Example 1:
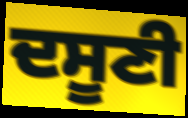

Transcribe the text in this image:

ਦਸੂਣੀ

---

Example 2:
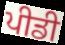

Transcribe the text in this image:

ਪੀਡੀ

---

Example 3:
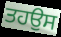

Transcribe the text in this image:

ਤਹਉਸ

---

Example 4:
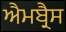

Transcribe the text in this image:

ਐਮਬ੍ਰੈਸ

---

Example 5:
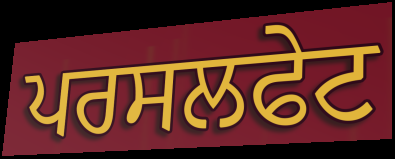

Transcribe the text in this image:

ਪਰਸਲਫੇਟ